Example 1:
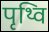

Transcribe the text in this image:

पृथ्वि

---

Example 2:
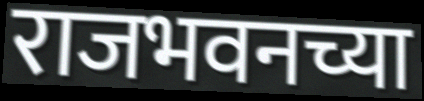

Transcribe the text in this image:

राजभवनच्या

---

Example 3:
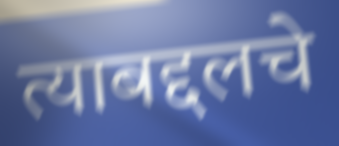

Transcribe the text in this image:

त्याबद्दलचे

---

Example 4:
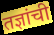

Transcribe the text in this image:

तज्ञांची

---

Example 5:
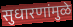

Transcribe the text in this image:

सुधारणांमुळे